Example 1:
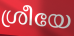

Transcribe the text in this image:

ശ്രീയേ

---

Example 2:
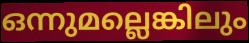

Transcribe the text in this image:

ഒന്നുമല്ലെങ്കിലും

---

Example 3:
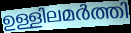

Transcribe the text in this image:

ഉള്ളിലമർത്തി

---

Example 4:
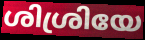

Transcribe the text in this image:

ശിശ്രിയേ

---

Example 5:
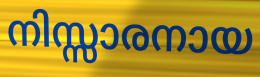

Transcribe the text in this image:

നിസ്സാരനായ